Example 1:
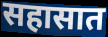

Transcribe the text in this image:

सहासात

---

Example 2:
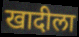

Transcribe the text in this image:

खादीला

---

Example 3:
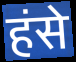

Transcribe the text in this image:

हंसे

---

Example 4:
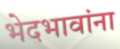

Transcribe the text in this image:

भेदभावांना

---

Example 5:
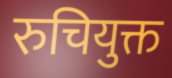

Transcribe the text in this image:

रुचियुक्त